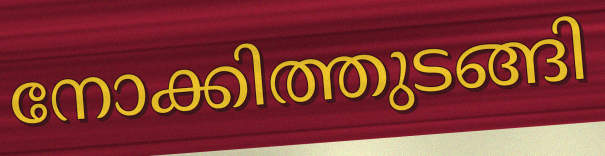
നോക്കിത്തുടങ്ങി